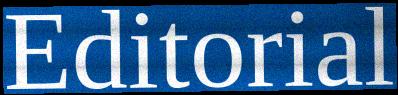
Editorial